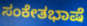
ಸಂಕೇತಭಾಷೆ